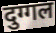
दुग्गल